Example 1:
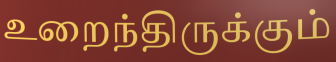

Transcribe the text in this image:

உறைந்திருக்கும்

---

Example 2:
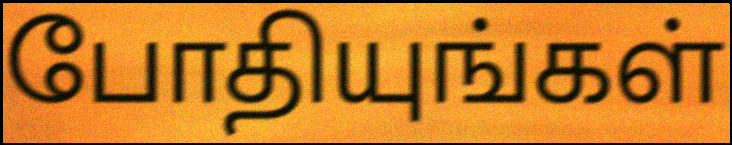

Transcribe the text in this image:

போதியுங்கள்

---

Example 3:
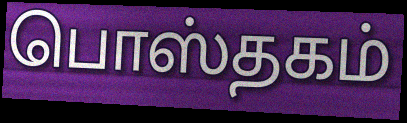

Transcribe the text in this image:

பொஸ்தகம்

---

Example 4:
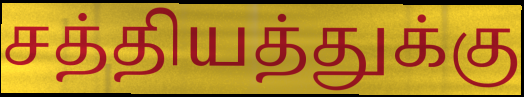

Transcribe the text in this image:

சத்தியத்துக்கு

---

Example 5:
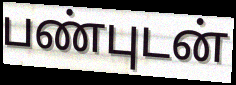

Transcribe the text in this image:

பண்புடன்